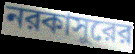
নরকাসুরের